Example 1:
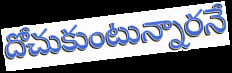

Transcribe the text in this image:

దోచుకుంటున్నారనే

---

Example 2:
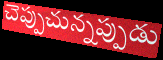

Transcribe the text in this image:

చెప్పుచున్నప్పుడు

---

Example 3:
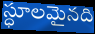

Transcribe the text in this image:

స్ధూలమైనది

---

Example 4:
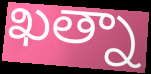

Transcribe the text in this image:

ఖత్నా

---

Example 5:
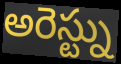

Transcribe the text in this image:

అరెస్ట్ను